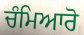
ਚੰਮਿਆਰੋ